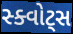
સ્ક્વોટ્સ